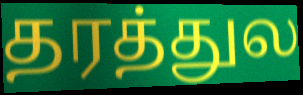
தரத்துல